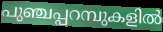
പുഞ്ചപ്പറമ്പുകളിൽ